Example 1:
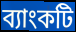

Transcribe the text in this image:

ব্যাংকটি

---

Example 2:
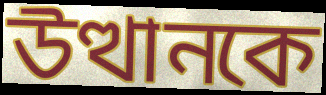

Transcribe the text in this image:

উত্থানকে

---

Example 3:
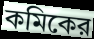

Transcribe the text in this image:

কমিকের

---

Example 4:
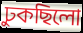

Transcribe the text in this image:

ঢুকছিলো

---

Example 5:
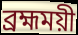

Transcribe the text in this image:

ব্রহ্মময়ী